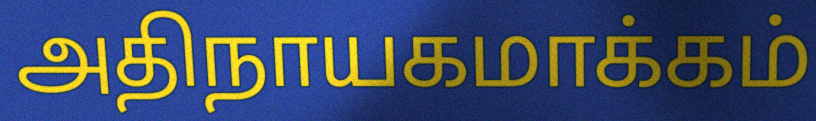
அதிநாயகமாக்கம்